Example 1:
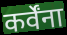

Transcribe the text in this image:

कर्वेंना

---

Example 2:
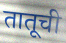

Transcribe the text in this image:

तातूची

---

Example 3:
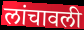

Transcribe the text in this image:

लांचावली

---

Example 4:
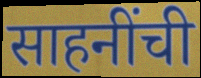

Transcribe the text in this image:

साहनींची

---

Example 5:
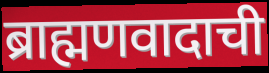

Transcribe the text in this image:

ब्राह्मणवादाची